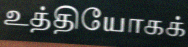
உத்தியோகக்